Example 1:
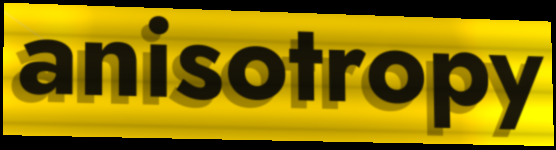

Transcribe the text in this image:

anisotropy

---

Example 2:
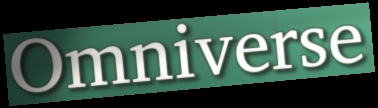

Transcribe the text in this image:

Omniverse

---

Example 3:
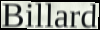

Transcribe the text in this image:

Billard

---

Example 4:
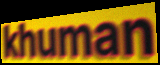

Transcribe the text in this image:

khuman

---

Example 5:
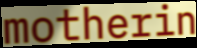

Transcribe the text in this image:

motherin